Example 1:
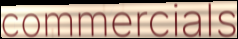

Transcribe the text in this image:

commercials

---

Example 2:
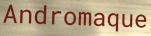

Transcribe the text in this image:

Andromaque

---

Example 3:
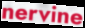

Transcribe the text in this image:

nervine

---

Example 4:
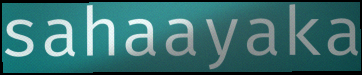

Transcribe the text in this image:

sahaayaka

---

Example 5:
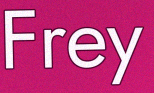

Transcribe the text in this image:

Frey